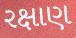
રક્ષાણ